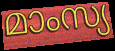
മാംസ്യ